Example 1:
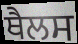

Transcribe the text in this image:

ਥੈਲਸ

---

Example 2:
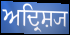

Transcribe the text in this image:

ਅਦ੍ਰਿਸ਼੍ਯ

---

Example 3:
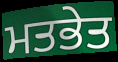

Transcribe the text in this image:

ਮਤਭੇਤ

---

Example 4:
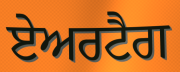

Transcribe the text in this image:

ਏਅਰਟੈਗ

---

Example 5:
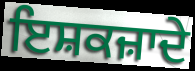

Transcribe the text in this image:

ਇਸ਼ਕਜ਼ਾਦੇ